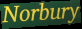
Norbury